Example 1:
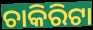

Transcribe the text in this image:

ଚାକିରିଟା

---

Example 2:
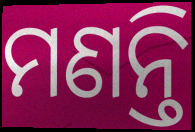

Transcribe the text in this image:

ମଣନ୍ତି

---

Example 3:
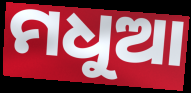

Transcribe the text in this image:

ମଧୁଆ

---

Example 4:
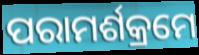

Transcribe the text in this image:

ପରାମର୍ଶକ୍ରମେ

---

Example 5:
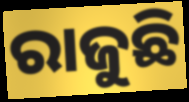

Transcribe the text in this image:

ରାଜୁଛି